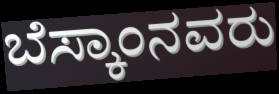
ಬೆಸ್ಕಾಂನವರು